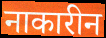
नाकारीन